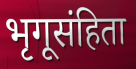
भृगूसंहिता